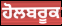
ਹੋਲਬਰੂਕ